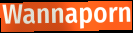
Wannaporn